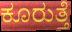
ಕೂರುತ್ತೆ